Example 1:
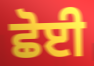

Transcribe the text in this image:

ਛੋਈ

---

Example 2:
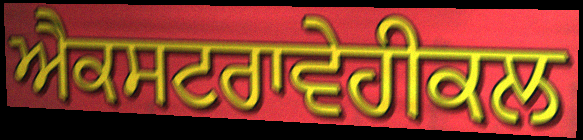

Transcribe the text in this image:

ਐਕਸਟਰਾਵੇਹੀਕਲ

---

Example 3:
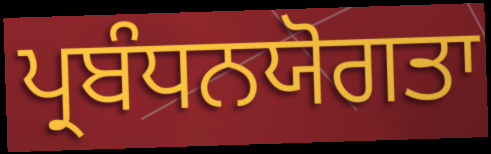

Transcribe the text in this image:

ਪ੍ਰਬੰਧਨਯੋਗਤਾ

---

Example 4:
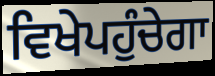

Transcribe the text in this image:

ਵਿਖੇਪਹੁੰਚੇਗਾ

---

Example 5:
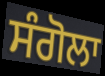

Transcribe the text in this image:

ਸੰਗੋਲਾ